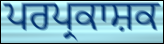
ਪਰਪ੍ਰਕਾਸ਼ਕ